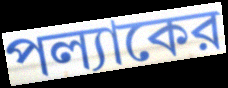
পল্যাকের